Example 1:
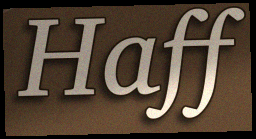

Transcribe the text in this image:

Haff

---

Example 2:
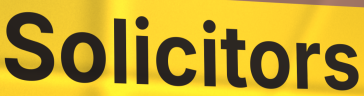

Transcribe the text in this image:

Solicitors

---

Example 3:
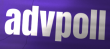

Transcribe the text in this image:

advpoll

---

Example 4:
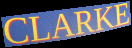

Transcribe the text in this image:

CLARKE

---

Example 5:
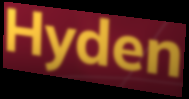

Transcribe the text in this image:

Hyden